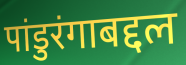
पांडुरंगाबद्दल